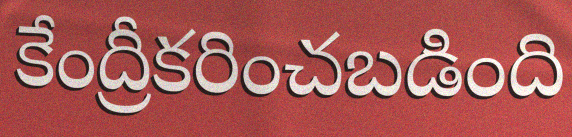
కేంద్రీకరించబడింది